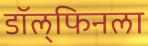
डॉल्फिनला